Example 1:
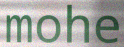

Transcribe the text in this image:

mohe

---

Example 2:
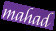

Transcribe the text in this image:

mahad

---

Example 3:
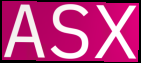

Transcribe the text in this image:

ASX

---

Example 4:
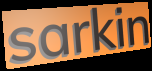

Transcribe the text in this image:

sarkin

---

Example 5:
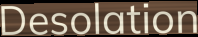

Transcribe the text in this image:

Desolation